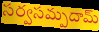
సర్వసమ్పదామ్